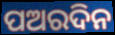
ପଅରଦିନ